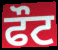
ਫੌਟ